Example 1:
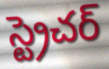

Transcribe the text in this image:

స్ట్రెచర్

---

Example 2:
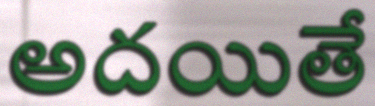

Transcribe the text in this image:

అదయితే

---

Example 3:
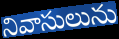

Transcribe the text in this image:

నివాసులును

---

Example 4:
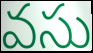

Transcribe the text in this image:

వసు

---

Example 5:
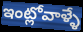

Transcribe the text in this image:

ఇంట్లోవాళ్ళే